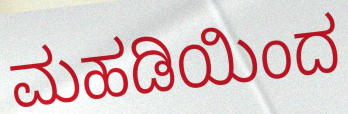
ಮಹಡಿಯಿಂದ